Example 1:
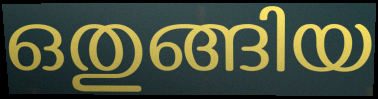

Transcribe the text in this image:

ഒതുങ്ങിയ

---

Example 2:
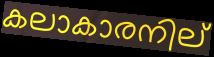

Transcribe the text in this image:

കലാകാരനില്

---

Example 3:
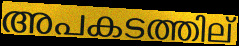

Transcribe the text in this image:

അപകടത്തില്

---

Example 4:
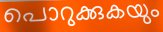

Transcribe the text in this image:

പൊറുക്കുകയും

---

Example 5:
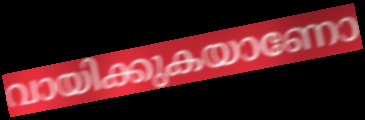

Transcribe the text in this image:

വായിക്കുകയാണോ